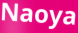
Naoya